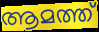
ആമത്ത്